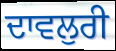
ਦਾਵਲੁਰੀ